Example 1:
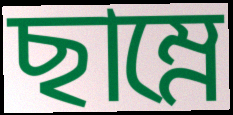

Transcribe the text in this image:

ছাম্নে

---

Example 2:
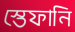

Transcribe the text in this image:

স্তেফানি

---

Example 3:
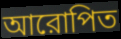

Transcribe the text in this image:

আরোপিত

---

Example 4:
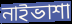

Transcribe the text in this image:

নাইভাশা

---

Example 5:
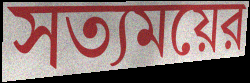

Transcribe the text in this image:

সত্যময়ের